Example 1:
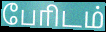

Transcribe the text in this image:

பேரிடம்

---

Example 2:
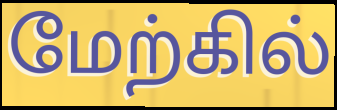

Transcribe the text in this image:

மேற்கில்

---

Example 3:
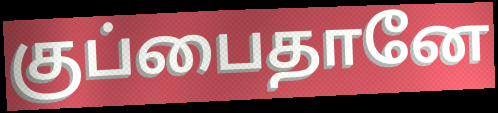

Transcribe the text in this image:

குப்பைதானே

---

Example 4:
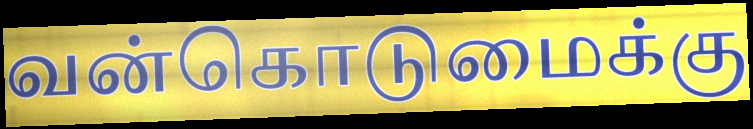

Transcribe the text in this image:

வன்கொடுமைக்கு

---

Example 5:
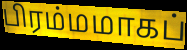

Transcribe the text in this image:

பிரம்மமாகப்